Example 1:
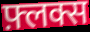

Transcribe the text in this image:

फ़्लक्स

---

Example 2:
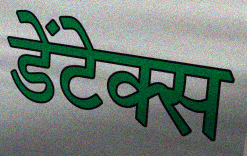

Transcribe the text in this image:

डेंटेक्स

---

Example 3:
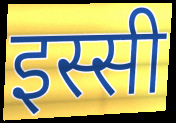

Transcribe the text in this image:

इस्सी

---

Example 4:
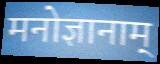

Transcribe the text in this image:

मनोज्ञानाम्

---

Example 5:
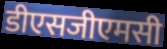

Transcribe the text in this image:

डीएसजीएमसी